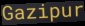
Gazipur